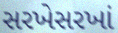
સરખેસરખાં